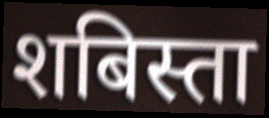
शबिस्ता